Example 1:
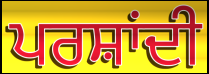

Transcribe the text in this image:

ਪਰਸ਼ਾਂਦੀ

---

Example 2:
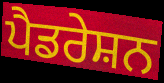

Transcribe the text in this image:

ਪੈਡਰੇਸ਼ਨ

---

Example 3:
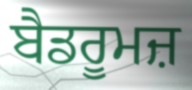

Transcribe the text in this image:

ਬੈਡਰੂਮਜ਼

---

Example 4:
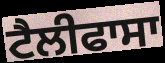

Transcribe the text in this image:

ਟੈਲੀਫਾਸਾ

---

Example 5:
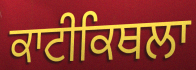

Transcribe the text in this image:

ਕਾਟੀਕਿਥਲਾ